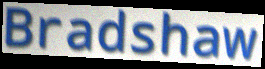
Bradshaw